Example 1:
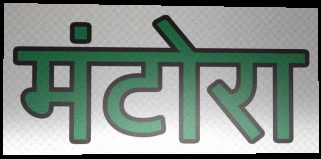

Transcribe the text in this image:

मंटोरा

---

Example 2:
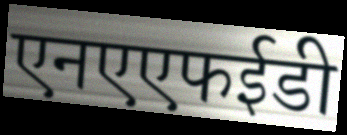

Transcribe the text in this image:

एनएएफईडी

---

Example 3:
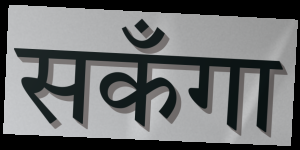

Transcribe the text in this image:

सकँगा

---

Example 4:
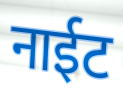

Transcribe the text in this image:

नाईट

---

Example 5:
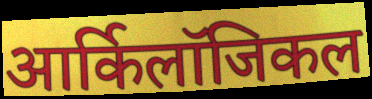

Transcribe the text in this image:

आर्किलॉजिकल